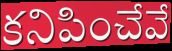
కనిపించేవే